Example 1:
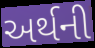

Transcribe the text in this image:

અર્થની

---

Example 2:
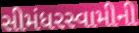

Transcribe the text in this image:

સીમંધરસ્વામીની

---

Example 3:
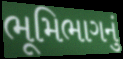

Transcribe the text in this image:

ભૂમિભાગનું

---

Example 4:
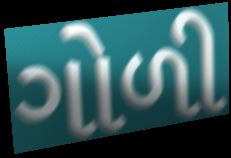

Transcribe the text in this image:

ગોળી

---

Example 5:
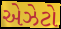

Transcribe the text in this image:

એઝેટો